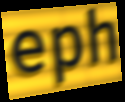
eph